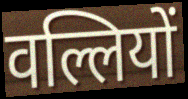
वल्लियों